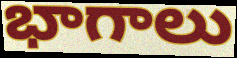
భాగాలు